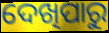
ଦେଖିପାରୁ